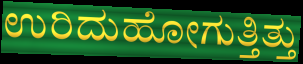
ಉರಿದುಹೋಗುತ್ತಿತ್ತು